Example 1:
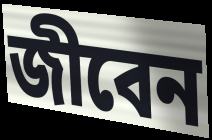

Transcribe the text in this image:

জীবেন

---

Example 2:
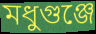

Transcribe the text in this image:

মধুগুঞ্জে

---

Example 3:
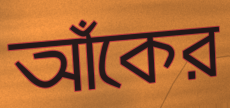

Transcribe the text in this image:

আঁকের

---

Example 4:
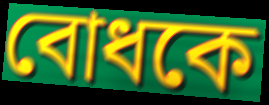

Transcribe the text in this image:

বোধকে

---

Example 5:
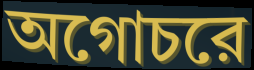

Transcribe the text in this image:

অগোচরে